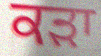
ਕੜਾ